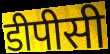
डीपीसी